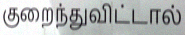
குறைந்துவிட்டால்